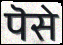
पॆसे